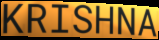
KRISHNA